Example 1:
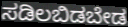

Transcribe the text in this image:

ಸಡಿಲಬಿಡಬೇಡ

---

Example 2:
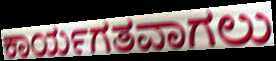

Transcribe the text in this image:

ಕಾರ್ಯಗತವಾಗಲು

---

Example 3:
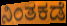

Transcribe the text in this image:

ನಿಂತಕಡೆ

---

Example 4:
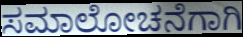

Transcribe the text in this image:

ಸಮಾಲೋಚನೆಗಾಗಿ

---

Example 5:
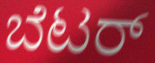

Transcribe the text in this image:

ಬೆಟರ್